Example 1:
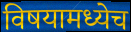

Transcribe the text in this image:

विषयामध्येच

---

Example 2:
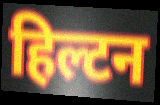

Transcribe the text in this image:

हिल्टन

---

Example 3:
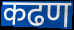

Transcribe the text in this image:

कढण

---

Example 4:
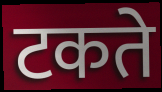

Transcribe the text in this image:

टकते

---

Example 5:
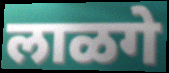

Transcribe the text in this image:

लाळगे